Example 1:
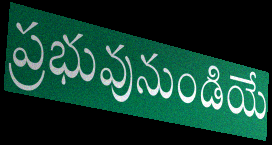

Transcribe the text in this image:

ప్రభువునుండియే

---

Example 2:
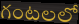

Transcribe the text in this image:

గంటలలో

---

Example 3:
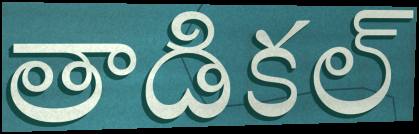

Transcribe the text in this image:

తాడికల్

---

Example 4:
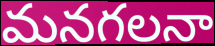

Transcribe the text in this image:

మనగలనా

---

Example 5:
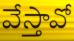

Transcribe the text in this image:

వేస్తావో